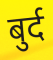
बुर्द